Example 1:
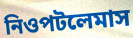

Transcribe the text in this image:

নিওপটলেমাস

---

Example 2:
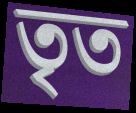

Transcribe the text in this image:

তৃত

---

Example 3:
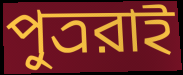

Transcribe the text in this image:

পুত্ররাই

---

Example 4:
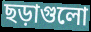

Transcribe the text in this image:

ছড়াগুলো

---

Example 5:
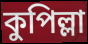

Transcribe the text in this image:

কুপিল্লা